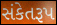
સંકેતરૂપ